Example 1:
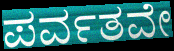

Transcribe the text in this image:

ಪರ್ವತವೇ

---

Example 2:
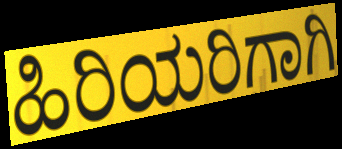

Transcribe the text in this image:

ಹಿರಿಯರಿಗಾಗಿ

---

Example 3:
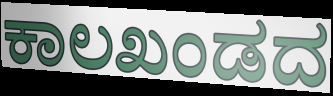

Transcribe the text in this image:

ಕಾಲಖಂಡದ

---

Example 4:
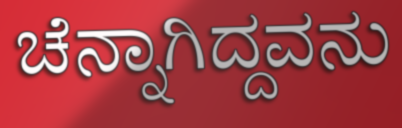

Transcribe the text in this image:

ಚೆನ್ನಾಗಿದ್ದವನು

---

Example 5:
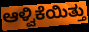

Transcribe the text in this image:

ಆಳ್ವಿಕೆಯಿತ್ತು